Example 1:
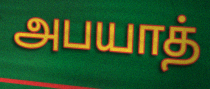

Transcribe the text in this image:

அபயாத்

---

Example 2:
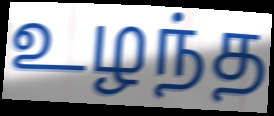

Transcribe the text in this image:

உழந்த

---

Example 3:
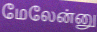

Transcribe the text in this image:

மேலேன்னு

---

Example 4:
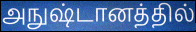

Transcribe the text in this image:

அநுஷ்டானத்தில்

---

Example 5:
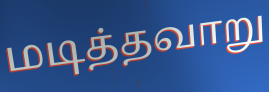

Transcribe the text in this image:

மடித்தவாறு